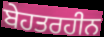
ਬੇਹਤਰਹੀਨ